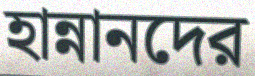
হান্নানদের